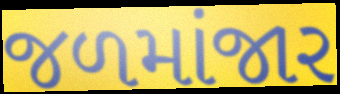
જળમાંજાર